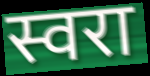
स्वरा